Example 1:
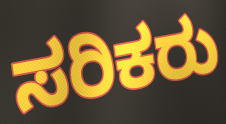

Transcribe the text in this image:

ಸರಿಕರು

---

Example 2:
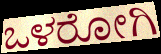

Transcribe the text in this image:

ಒಳರೋಗಿ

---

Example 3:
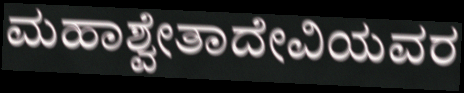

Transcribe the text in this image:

ಮಹಾಶ್ವೇತಾದೇವಿಯವರ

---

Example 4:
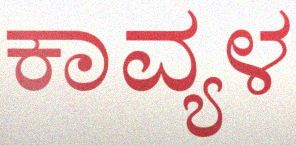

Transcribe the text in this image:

ಕಾವ್ಯಳ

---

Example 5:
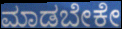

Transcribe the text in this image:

ಮಾಡಬೇಕೇ